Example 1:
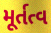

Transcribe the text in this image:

મૂર્તત્વ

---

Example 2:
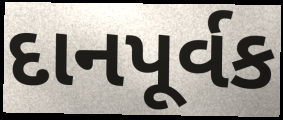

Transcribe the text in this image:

દાનપૂર્વક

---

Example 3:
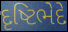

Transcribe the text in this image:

દૃષ્ટિભેદે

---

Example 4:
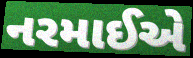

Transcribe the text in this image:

નરમાઈએ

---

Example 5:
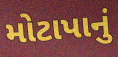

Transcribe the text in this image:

મોટાપાનું